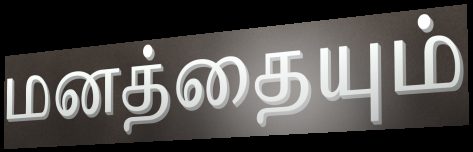
மனத்தையும்